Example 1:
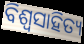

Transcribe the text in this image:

ବିଶ୍ଵସାହିତ୍ୟ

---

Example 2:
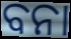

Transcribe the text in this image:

ବନା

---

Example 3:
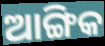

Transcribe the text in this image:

ଆଙ୍ଗିକ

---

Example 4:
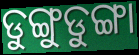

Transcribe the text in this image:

ଡୁଙ୍ଗୁଡୁଙ୍ଗା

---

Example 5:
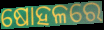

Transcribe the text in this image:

ଷୋହଳରେ